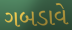
ગબડાવે